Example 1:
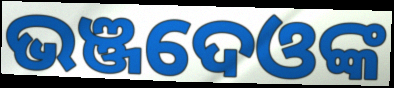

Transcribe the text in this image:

ଭଞ୍ଜଦେଓଙ୍କ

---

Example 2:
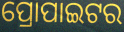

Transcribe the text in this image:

ପ୍ରୋପାଇଟର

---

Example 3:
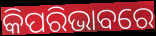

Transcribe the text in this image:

କିପରିଭାବରେ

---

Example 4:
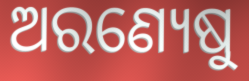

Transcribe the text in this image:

ଅରଣ୍ୟେଷୁ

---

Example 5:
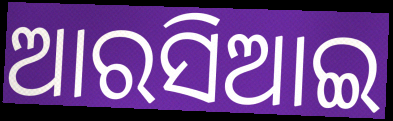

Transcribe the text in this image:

ଆରସିଆଇ